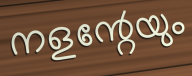
നളന്റേയും